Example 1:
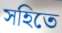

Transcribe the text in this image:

সহিতে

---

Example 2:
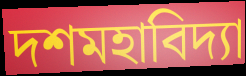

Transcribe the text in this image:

দশমহাবিদ্যা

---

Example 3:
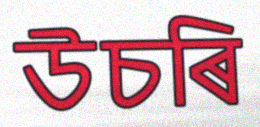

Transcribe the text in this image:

উচৰি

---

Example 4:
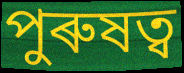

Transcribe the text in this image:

পুৰুষত্ব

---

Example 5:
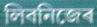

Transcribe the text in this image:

লিবনিজেৰ